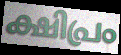
ക്ഷിപ്രം